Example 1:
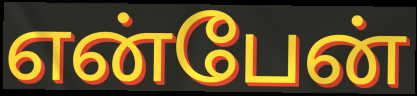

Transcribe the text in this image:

என்பேன்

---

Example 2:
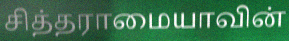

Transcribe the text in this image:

சித்தராமையாவின்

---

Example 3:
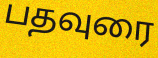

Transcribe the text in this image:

பதவுரை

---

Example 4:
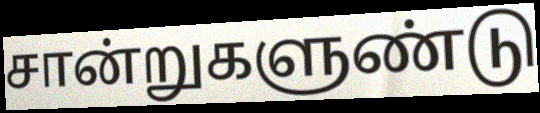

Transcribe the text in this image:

சான்றுகளுண்டு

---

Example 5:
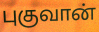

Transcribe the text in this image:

புகுவான்